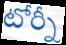
టోర్నీ